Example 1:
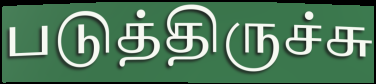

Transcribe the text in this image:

படுத்திருச்சு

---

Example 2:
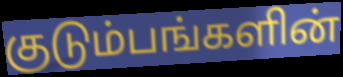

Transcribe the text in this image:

குடும்பங்களின்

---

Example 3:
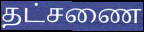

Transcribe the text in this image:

தட்சணை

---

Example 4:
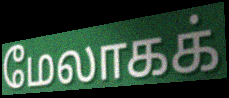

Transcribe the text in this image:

மேலாகக்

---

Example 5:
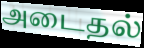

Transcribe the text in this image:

அடைதல்